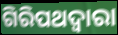
ଗିରିପଥଦ୍ୱାରା